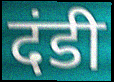
दंडी